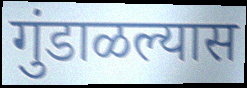
गुंडाळल्यास